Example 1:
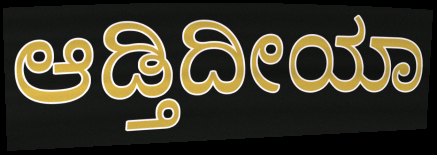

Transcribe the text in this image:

ಆಡ್ತಿದೀಯಾ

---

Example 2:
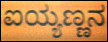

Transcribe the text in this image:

ಐಯ್ಯಣ್ಣನ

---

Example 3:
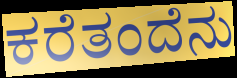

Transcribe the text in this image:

ಕರೆತಂದೆನು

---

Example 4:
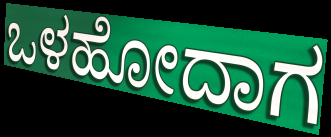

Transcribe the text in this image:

ಒಳಹೋದಾಗ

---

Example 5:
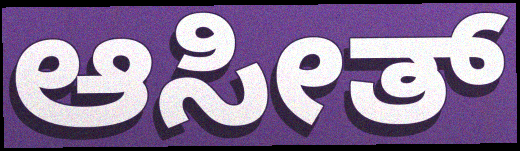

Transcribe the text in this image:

ಆಸೀತ್